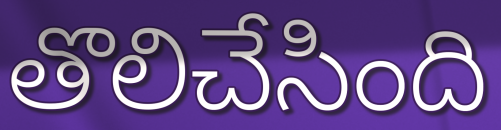
తొలిచేసింది